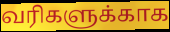
வரிகளுக்காக